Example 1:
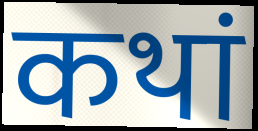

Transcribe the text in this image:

कथां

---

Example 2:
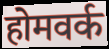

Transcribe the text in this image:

होमवर्क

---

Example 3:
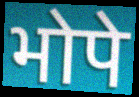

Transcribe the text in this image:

भोपे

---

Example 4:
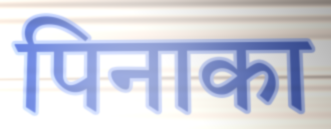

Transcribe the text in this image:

पिनाका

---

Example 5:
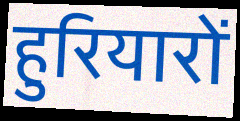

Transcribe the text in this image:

हुरियारों